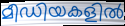
മീഡിയകളിൽ